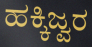
ಹಕ್ಕಿಜ್ವರ